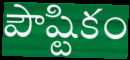
పౌష్టికం